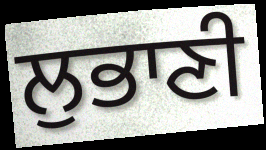
ਲੁਭਾਣੀ